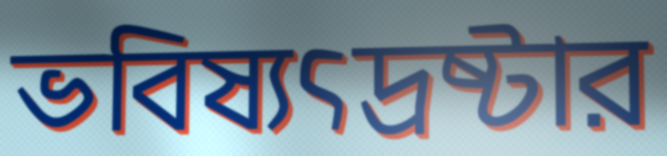
ভবিষ্যৎদ্রষ্টার